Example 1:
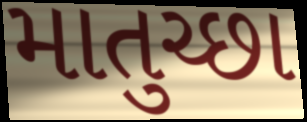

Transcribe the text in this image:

માતુચ્છા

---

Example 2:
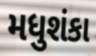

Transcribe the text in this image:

મધુશંકા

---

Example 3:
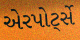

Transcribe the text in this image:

એરપોર્ટ્સે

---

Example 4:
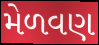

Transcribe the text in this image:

મેળવણ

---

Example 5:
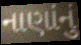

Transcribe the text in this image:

નાણાંનું